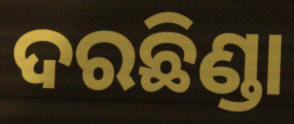
ଦରଛିଣ୍ଡା